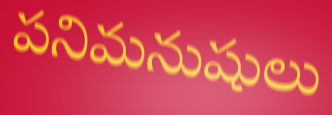
పనిమనుషులు